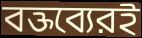
বক্তব্যেরই